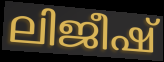
ലിജീഷ്